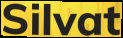
Silvat